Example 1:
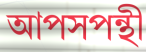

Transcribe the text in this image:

আপসপন্থী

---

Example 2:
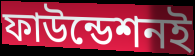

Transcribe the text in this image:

ফাউন্ডেশনই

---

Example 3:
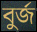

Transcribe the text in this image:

বুর্জ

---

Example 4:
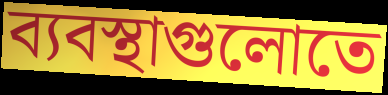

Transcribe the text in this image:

ব্যবস্থাগুলোতে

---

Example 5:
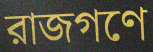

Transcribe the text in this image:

রাজগণে